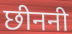
छीननी